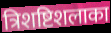
त्रिशष्टिशलाका